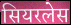
सियरलेस